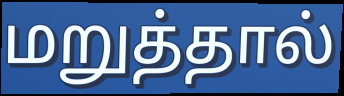
மறுத்தால்